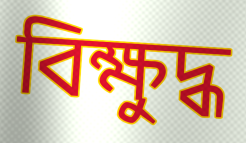
বিক্ষুদ্ধ